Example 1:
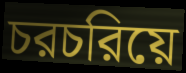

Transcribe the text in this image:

চরচরিয়ে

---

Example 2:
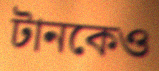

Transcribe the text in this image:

টানকেও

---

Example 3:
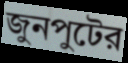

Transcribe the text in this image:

জুনপুটের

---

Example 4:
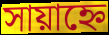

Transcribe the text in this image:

সায়াহ্নে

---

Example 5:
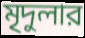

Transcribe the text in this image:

মৃদুলার